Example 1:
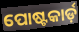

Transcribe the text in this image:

ପୋଷ୍ଟକାର୍ଡ଼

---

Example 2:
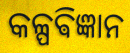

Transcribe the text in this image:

କଳ୍ପଵିଜ୍ଞାନ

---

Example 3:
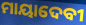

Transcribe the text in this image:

ମାୟାଦେବୀ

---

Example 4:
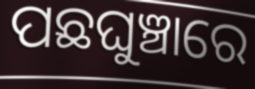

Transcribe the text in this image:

ପଛଘୁଞ୍ଚାରେ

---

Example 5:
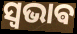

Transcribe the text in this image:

ସ୍ଵଭାଵ